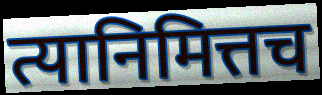
त्यानिमित्तच